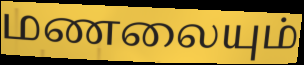
மணலையும்